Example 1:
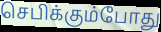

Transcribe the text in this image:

செபிக்கும்போது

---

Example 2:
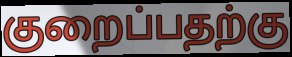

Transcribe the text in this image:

குறைப்பதற்கு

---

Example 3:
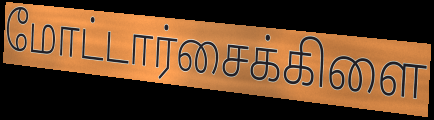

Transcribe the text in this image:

மோட்டார்சைக்கிளை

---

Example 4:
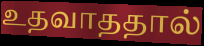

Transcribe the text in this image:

உதவாததால்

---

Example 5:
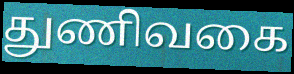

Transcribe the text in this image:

துணிவகை